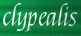
clypealis